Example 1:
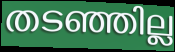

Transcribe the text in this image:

തടഞ്ഞില്ല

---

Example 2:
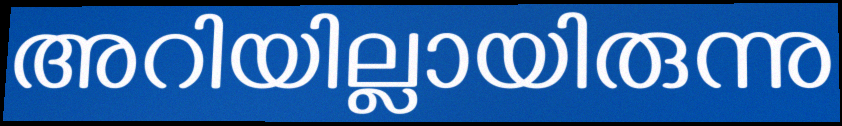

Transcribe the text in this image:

അറിയില്ലായിരുന്നു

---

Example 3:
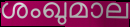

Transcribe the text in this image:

ശംഖുമാല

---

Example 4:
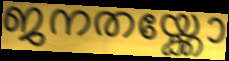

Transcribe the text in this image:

ജനതയ്ക്കോ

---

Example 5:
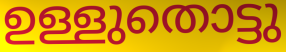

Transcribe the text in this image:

ഉള്ളുതൊട്ടു